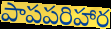
పాపపరిహార